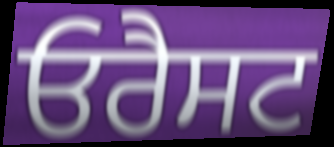
ਓਰੈਸਟ